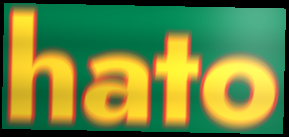
hato